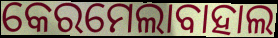
କେରମେଲାବାହାଲ